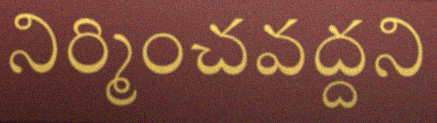
నిర్మించవద్దని